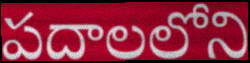
పదాలలోని